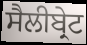
ਸੈਲੀਬ੍ਰੇਟ